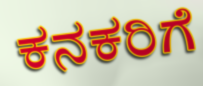
ಕನಕರಿಗೆ